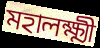
মহালক্ষ্মী